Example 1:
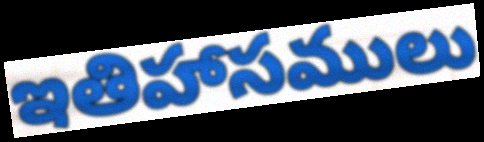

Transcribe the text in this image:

ఇతిహాసములు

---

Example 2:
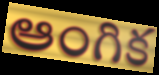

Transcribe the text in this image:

ఆంగిక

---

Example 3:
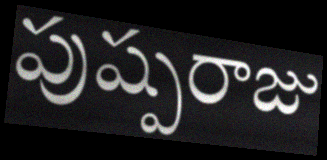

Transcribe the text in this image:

పుష్పరాజు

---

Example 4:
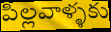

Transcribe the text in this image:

పిల్లవాళ్ళకు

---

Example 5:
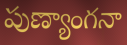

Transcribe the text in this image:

పుణ్యాంగనా